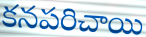
కనపరిచాయి